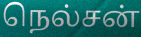
நெல்சன்